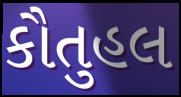
કૌતુહલ